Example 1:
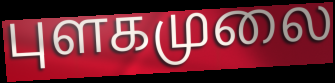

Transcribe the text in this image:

புளகமுலை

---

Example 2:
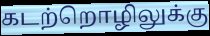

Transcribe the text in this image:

கடற்றொழிலுக்கு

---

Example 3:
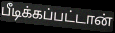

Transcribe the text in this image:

பீடிக்கப்பட்டான்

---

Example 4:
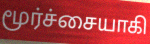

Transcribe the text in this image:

மூர்ச்சையாகி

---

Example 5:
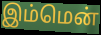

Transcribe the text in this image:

இம்மென்